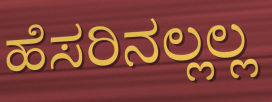
ಹೆಸರಿನಲ್ಲಲ್ಲ